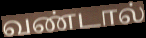
வண்டால்